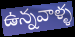
ఉన్నవాళ్ళ